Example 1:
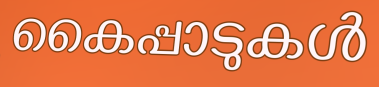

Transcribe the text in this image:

കൈപ്പാടുകൾ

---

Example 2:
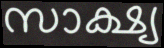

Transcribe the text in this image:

സാക്ഷ്യ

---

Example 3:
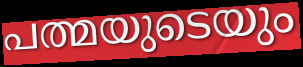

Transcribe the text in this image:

പത്മയുടെയും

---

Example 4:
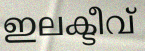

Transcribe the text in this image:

ഇലക്ടീവ്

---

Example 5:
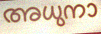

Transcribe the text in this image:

അധുനാ